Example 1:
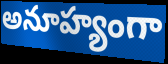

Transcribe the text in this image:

అనూహ్యంగా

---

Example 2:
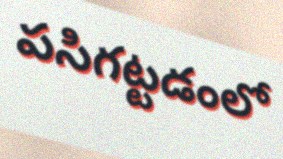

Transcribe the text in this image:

పసిగట్టడంలో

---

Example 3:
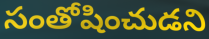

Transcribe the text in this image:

సంతోషించుడని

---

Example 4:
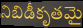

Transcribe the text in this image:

నిబిడీకృతమై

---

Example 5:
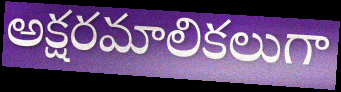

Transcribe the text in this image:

అక్షరమాలికలుగా